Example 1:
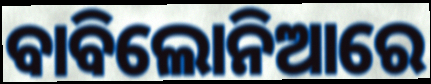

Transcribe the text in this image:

ବାବିଲୋନିଆରେ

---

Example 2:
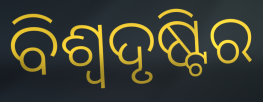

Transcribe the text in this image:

ବିଶ୍ୱଦୃଷ୍ଟିର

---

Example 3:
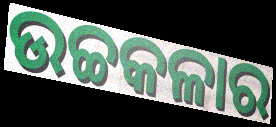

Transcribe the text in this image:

ଉଚ୍ଚକଳାର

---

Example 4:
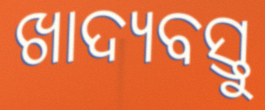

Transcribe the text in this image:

ଖାଦ୍ୟବସ୍ତୁ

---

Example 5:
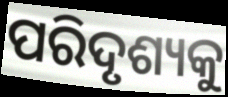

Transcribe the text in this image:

ପରିଦୃଶ୍ୟକୁ